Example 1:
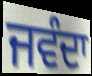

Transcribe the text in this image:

ਜਵੰਦਾ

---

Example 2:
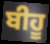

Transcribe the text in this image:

ਬੀਹੂ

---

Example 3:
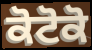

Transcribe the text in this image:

ਕੋਟੋਕੋ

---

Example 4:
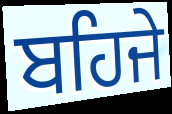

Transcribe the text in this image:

ਬਹਿਜੇ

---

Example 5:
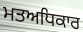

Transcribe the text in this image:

ਮਤਅਧਿਕਾਰ